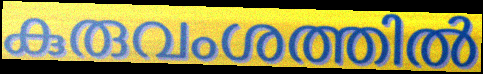
കുരുവംശത്തിൽ